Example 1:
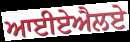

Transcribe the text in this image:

ਆਈਏਐਲਏ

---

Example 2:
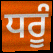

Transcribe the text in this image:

ਧਰੂੰ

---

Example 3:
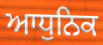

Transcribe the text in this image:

ਆਧੁਨਿਕ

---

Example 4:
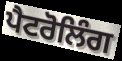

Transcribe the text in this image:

ਪੈਟਰੋਲਿੰਗ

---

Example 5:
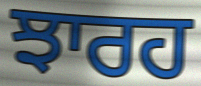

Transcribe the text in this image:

ਝਾਰਹ